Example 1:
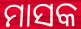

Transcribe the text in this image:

ମାସକ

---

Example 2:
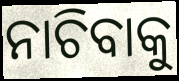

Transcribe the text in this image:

ନାଚିବାକୁ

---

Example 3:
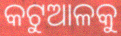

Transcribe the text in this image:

କଟୁଆଳକୁ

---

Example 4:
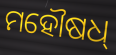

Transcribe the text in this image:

ମହୌଷଧ୍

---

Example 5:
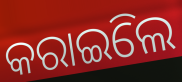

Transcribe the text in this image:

କରାଇିଲେ